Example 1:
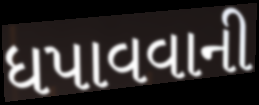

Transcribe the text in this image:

ધપાવવાની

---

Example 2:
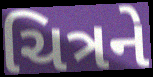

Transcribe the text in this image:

ચિત્રને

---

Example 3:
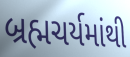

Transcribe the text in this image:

બ્રહ્મચર્યમાંથી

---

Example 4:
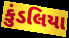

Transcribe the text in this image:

કુંડલિયા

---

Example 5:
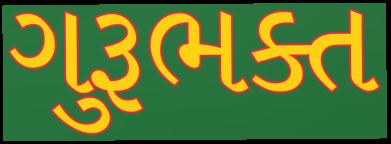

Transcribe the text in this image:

ગુરૂભક્ત